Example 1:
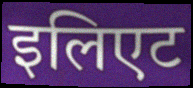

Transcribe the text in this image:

इलिएट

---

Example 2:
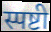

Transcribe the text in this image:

स्पष्टी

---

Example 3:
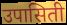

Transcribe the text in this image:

उपासिती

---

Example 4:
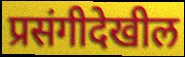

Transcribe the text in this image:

प्रसंगीदेखील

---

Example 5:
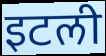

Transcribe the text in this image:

इटली